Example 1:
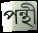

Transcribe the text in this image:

পন্থী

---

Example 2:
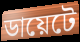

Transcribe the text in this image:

ডায়েটে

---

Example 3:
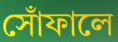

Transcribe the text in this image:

সোঁফালে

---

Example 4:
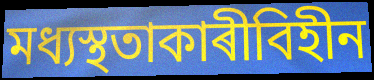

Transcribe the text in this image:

মধ্যস্থতাকাৰীবিহীন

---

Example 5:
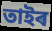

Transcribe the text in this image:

তাইৰ